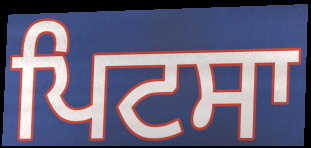
ਪਿਟਸਾ